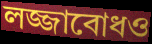
লজ্জাবোধও